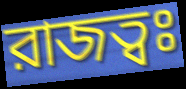
রাজত্বঃ